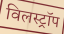
विलस्ट्रॉप